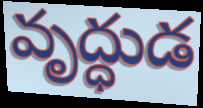
వృద్ధుడ